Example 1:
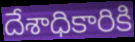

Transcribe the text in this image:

దేశాధికారికి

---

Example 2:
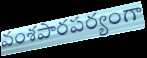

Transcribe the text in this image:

వంశపారపర్యంగా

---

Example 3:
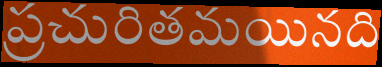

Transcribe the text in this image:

ప్రచురితమయినది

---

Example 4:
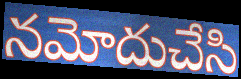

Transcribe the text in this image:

నమోదుచేసి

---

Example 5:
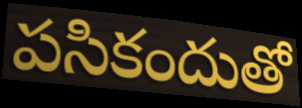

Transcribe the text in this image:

పసికందుతో